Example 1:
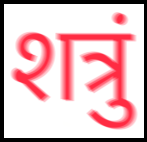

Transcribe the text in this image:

शत्रुं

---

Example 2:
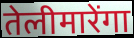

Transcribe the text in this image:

तेलीमारेंगा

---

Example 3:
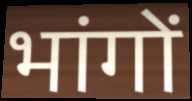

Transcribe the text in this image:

भांगों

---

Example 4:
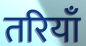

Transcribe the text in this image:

तरियाँ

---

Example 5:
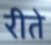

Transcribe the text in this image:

रीते